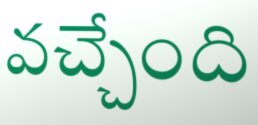
వచ్చేంది